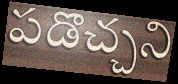
పడొచ్చని